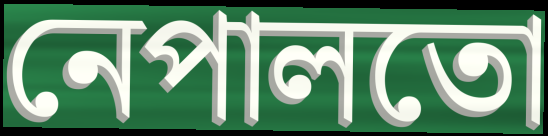
নেপালতো